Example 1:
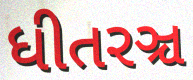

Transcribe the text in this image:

ધીતરઞ્ચ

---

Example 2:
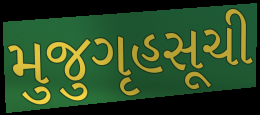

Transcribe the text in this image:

મુજુગૃહસૂચી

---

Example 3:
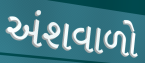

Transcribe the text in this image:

અંશવાળો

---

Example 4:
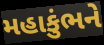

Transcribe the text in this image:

મહાકુંભને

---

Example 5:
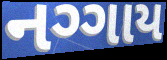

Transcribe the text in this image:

નગ્ગાય